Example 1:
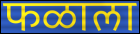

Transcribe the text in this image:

फळाला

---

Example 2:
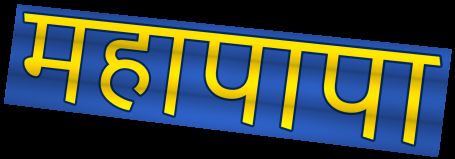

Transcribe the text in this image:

महापापा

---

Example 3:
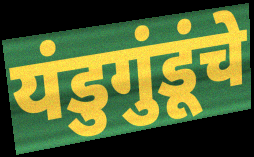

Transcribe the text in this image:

यंडुगुंडूंचे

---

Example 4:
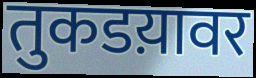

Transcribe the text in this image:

तुकडय़ावर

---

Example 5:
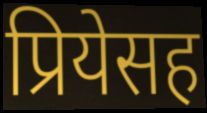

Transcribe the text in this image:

प्रियेसह